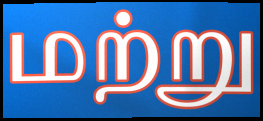
மற்று